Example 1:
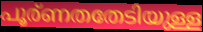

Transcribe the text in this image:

പൂര്ണതതേടിയുള്ള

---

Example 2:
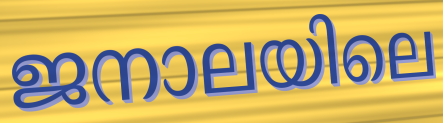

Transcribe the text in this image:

ജനാലയിലെ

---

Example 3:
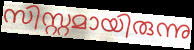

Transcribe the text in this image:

സിസ്റ്റമായിരുന്നു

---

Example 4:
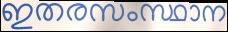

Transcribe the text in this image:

ഇതരസംസ്ഥാന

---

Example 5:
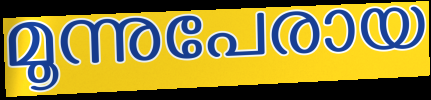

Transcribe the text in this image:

മൂന്നുപേരായ